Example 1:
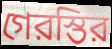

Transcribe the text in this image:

গেরস্তির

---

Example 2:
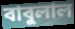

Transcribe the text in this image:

বাবুলাল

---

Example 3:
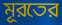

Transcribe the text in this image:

মূরতের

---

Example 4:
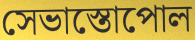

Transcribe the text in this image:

সেভাস্তোপোল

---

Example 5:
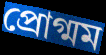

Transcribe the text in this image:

প্রোগ্মম